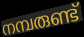
നമ്പരുണ്ട്